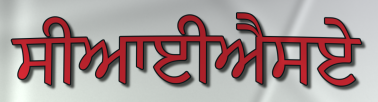
ਸੀਆਈਐਸਏ